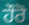
ਹੌਰੋ